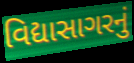
વિદ્યાસાગરનું